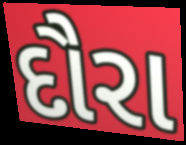
દૌરા